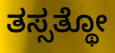
ತಸ್ಸತ್ಥೋ